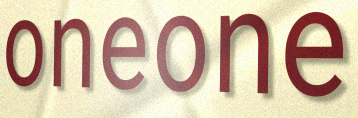
oneone